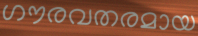
ഗൗരവതരമായ